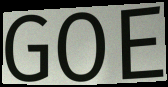
GOE